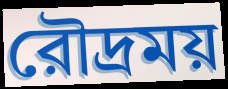
রৌদ্রময়